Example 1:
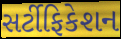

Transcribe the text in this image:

સર્ટીફિકેશન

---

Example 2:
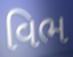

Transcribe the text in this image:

વિભ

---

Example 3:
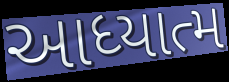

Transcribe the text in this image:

આધ્યાત્મ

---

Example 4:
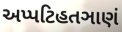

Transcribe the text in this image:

અપ્પટિહતઞાણં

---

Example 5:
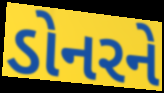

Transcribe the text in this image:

ડોનરને